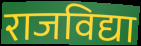
राजविद्या